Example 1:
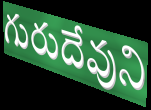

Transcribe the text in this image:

గురుదేవుని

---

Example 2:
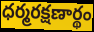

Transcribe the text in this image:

ధర్మరక్షణార్థం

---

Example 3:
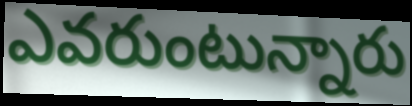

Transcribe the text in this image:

ఎవరుంటున్నారు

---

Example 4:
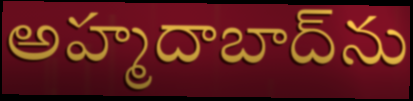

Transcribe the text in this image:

అహ్మదాబాద్‌ను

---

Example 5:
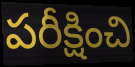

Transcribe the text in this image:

పరీక్షించి